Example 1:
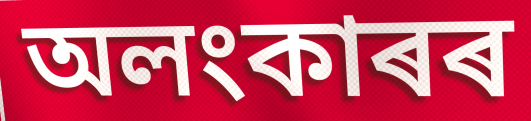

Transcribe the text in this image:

অলংকাৰৰ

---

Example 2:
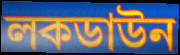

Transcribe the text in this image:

লকডাউন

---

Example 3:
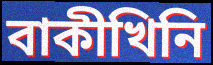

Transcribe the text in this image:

বাকীখিনি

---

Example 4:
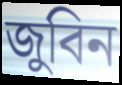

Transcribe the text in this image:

জুবিন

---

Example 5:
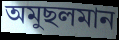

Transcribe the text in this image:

অমুছলমান